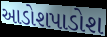
આડોશપાડોશ